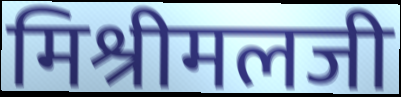
मिश्रीमलजी